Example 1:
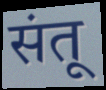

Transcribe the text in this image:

संतू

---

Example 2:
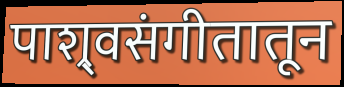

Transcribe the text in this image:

पाश्र्वसंगीतातून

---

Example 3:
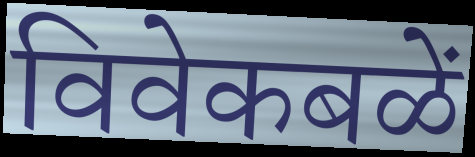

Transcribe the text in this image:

विवेकबळें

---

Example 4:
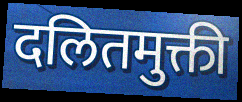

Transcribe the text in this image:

दलितमुक्ती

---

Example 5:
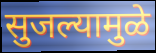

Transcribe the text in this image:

सुजल्यामुळे